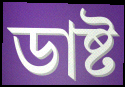
ডাষ্ট